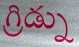
గ్రిడ్ను